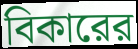
বিকারের